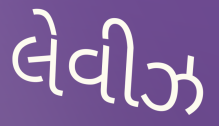
લેવીઝ